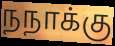
நநாக்கு